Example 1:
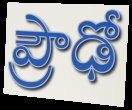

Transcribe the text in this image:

ప్రౌఢో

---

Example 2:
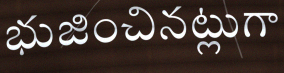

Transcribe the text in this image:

భుజించినట్లుగా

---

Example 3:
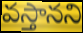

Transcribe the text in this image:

వస్తానని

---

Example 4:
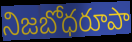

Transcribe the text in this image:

నిజబోధరూపా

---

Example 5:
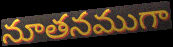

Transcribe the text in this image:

నూతనముగా